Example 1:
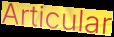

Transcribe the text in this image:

Articular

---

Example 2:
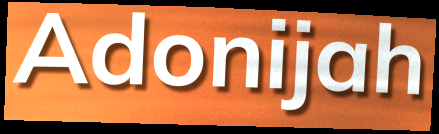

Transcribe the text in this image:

Adonijah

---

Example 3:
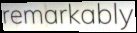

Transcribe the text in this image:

remarkably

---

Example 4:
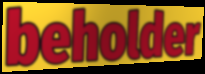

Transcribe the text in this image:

beholder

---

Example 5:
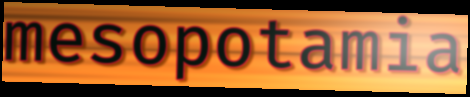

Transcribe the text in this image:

mesopotamia